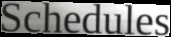
Schedules